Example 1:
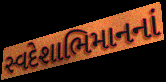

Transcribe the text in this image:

સ્વદેશાભિમાનનાં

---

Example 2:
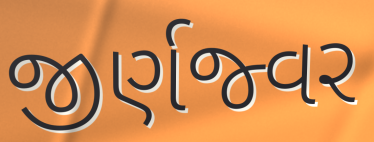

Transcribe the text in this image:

જીર્ણજ્વર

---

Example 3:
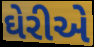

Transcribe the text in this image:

ઘેરીએ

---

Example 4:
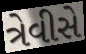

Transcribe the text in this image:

ત્રેવીસે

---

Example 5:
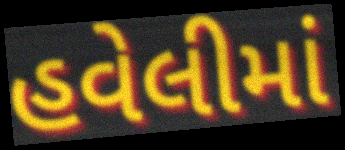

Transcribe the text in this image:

હવેલીમાં